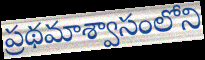
ప్రథమాశ్వాసంలోని